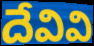
దేవివి